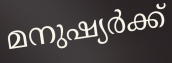
മനുഷ്യർക്ക്